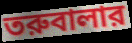
তরুবালার